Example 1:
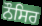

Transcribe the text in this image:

ਨੌਸਿਰ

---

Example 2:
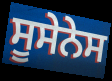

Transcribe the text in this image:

ਸੂਸੇਨੇਸ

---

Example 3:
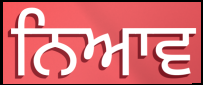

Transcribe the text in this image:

ਨਿਆਵ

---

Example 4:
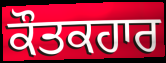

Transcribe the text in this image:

ਕੌਤਕਹਾਰ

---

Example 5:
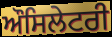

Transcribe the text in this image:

ਔਸਿਲੇਟਰੀ